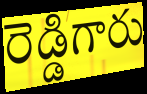
రెడ్డిగారు